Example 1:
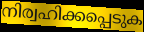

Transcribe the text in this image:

നിര്വഹിക്കപ്പെടുക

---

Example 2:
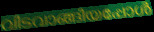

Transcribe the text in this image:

വിടവാങ്ങിയപ്പോൾ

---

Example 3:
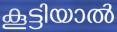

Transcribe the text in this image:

കൂട്ടിയാൽ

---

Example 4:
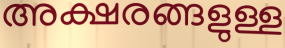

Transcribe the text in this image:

അക്ഷരങ്ങളുള്ള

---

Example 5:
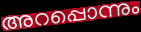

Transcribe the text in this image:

അറപ്പൊന്നും